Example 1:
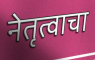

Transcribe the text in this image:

नेतृत्वाचा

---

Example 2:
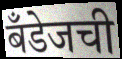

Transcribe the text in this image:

बँडेजची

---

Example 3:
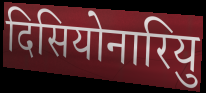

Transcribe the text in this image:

दिसियोनारियु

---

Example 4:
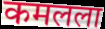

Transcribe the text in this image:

कमलला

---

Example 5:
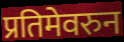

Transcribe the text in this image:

प्रतिमेवरुन